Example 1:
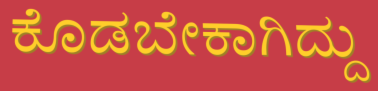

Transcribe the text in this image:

ಕೊಡಬೇಕಾಗಿದ್ದು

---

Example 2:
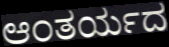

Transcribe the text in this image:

ಆಂತರ್ಯದ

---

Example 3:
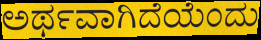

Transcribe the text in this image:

ಅರ್ಥವಾಗಿದೆಯೆಂದು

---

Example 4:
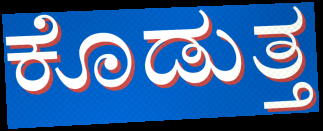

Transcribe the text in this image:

ಕೊಡುತ್ತ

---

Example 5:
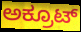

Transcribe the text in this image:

ಅಕ್ರೂಟ್